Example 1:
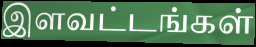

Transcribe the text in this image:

இளவட்டங்கள்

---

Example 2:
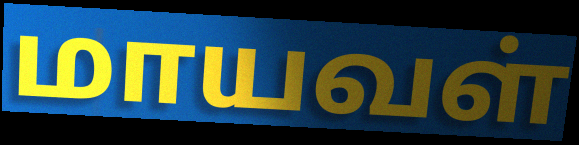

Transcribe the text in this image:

மாயவள்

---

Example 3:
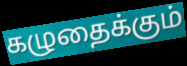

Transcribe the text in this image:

கழுதைக்கும்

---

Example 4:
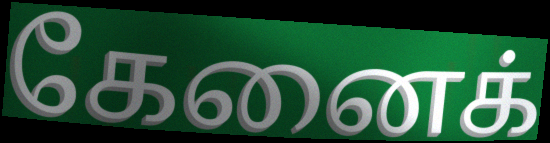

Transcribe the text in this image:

கேனைக்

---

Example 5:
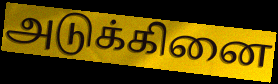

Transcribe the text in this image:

அடுக்கினை